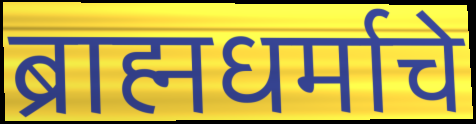
ब्राह्मधर्माचे